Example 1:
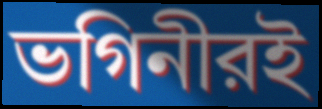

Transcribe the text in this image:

ভগিনীরই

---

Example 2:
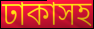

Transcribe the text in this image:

ঢাকাসহ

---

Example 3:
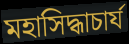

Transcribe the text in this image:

মহাসিদ্ধাচার্য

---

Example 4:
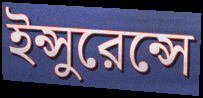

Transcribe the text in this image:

ইন্সুরেন্সে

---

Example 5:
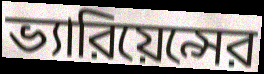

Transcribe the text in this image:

ভ্যারিয়েন্সের